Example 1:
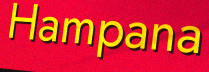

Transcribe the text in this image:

Hampana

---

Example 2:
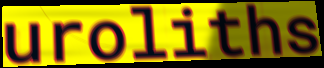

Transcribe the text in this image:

uroliths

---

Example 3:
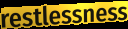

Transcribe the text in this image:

restlessness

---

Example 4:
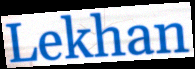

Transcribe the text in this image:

Lekhan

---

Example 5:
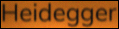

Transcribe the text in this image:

Heidegger